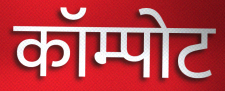
कॉम्पोट